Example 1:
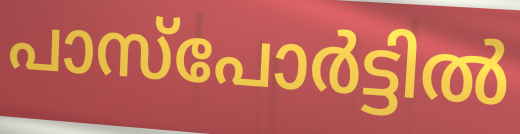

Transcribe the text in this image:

പാസ്പോർട്ടിൽ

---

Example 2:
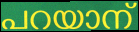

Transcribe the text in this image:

പറയാന്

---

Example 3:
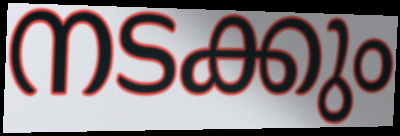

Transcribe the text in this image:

നടക്കും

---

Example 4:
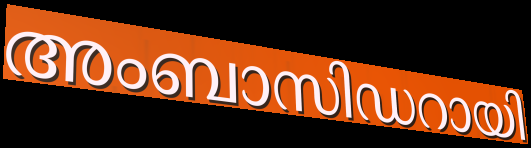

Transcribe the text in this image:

അംബാസിഡറായി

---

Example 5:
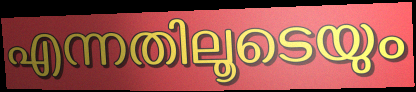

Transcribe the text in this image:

എന്നതിലൂടെയും